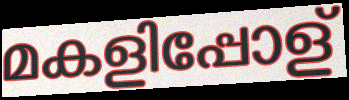
മകളിപ്പോള്